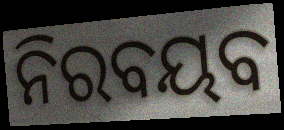
ନିରବୟବ